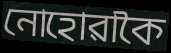
নোহোৱাকৈ